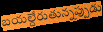
బయల్దేరుతున్నప్పుడు